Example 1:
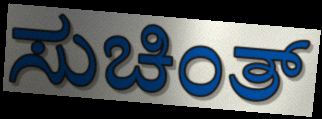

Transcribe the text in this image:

ಸುಚಿಂತ್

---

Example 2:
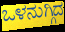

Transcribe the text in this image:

ಒಳನುಗ್ಗಿದ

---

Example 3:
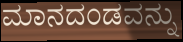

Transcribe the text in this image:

ಮಾನದಂಡವನ್ನು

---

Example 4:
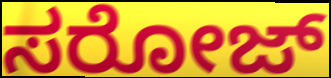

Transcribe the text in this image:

ಸರೋಜ್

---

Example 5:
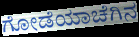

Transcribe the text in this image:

ಗೋಡೆಯಾಚೆಗಿನ